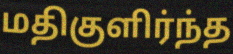
மதிகுளிர்ந்த